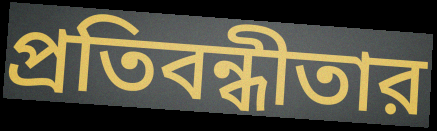
প্রতিবন্ধীতার